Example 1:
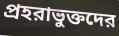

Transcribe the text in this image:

প্রহরাভুক্তদের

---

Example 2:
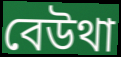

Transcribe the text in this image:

বেউথা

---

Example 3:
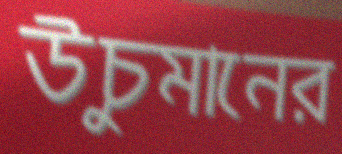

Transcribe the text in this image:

উচুমানের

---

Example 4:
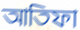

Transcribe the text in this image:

আতিফা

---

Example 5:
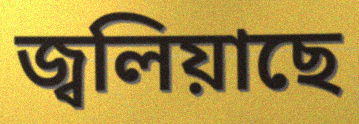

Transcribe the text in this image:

জ্বলিয়াছে